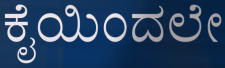
ಕೈಯಿಂದಲೇ